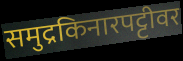
समुद्रकिनारपट्टीवर